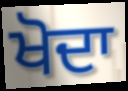
ਖੋਦਾ